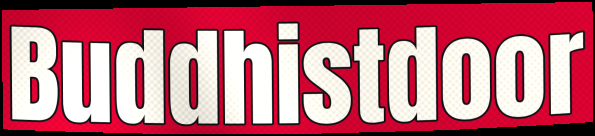
Buddhistdoor